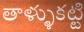
తాళ్ళుకట్టి